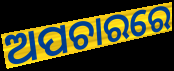
ଅପଚାରରେ